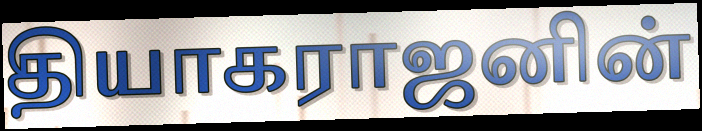
தியாகராஜனின்